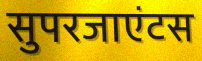
सुपरजाएंटस